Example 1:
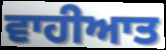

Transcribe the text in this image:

ਵਾਹੀਆਤ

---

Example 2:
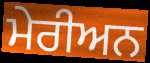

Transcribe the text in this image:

ਮੇਰੀਅਨ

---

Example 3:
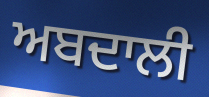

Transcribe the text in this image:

ਅਬਦਾਲੀ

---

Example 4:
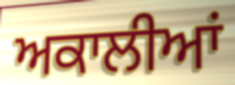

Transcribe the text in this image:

ਅਕਾਲੀਆਂ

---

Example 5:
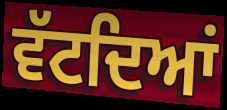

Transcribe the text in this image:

ਵੱਟਦਿਆਂ